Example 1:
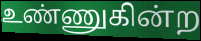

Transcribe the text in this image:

உண்ணுகின்ற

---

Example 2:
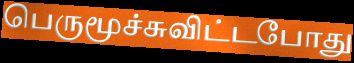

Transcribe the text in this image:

பெருமூச்சுவிட்டபோது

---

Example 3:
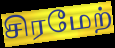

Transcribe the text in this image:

சிரமேற்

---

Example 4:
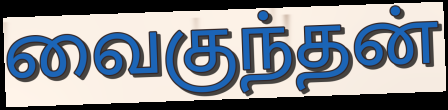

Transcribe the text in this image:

வைகுந்தன்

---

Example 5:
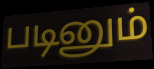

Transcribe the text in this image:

படினும்